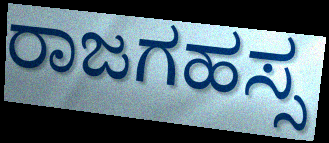
ರಾಜಗಹಸ್ಸ